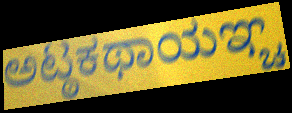
ಅಟ್ಠಕಥಾಯಞ್ಚ